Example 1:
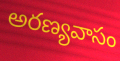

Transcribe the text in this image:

అరణ్యవాసం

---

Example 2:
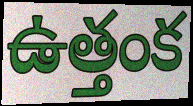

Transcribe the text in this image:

ఉత్తంక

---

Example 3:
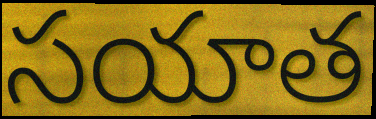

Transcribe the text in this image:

సయాత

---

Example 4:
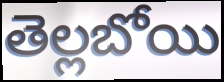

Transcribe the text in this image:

తెల్లబోయి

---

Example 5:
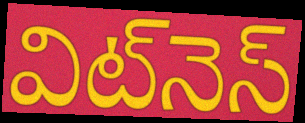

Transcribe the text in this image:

విట్‌నెస్